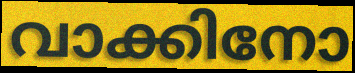
വാക്കിനോ